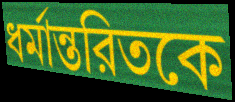
ধর্মান্তরিতকে